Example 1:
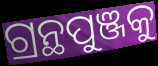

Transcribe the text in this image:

ଗ୍ରନ୍ଥପୁଞ୍ଜକୁ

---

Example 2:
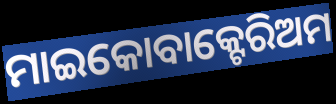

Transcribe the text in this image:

ମାଇକୋବାକ୍ଟେରିଅମ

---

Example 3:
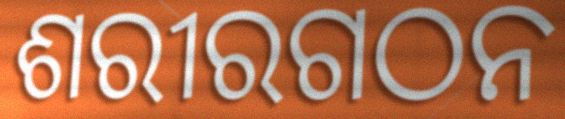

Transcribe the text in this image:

ଶରୀରଗଠନ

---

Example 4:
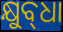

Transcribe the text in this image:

କ୍ଷୁବ୍‌ଧା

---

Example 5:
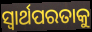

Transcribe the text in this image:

ସ୍ଵାର୍ଥପରତାକୁ